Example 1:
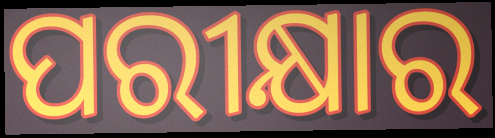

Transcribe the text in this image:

ପରୀକ୍ଷାର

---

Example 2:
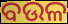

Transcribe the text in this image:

ବଉଳ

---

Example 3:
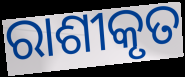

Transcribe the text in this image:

ରାଶୀକୃତ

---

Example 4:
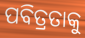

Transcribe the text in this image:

ପବିତ୍ରତାକୁ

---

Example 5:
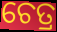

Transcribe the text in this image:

ଚେତ୍ର